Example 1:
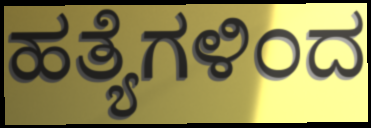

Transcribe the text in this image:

ಹತ್ಯೆಗಳಿಂದ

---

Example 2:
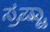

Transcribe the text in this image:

ಸ್ರಷ್ಟಾ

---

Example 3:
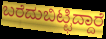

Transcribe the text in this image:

ಬರೆದುಬಿಟ್ಟಿದ್ದಾರೆ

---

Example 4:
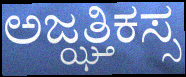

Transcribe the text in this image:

ಅಜ್ಝತ್ತಿಕಸ್ಸ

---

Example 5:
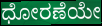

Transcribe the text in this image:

ಧೋರಣೆಯೇ